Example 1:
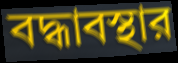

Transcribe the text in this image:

বদ্ধাবস্থার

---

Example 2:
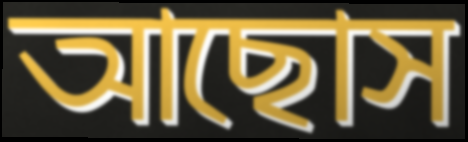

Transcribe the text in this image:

আছোস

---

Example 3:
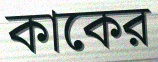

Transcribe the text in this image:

কাকের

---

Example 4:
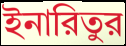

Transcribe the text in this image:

ইনারিতুর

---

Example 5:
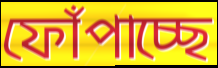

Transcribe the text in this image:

ফোঁপাচ্ছে